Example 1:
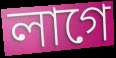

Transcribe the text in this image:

লাগে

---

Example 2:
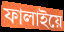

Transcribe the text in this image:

ফালাইয়ে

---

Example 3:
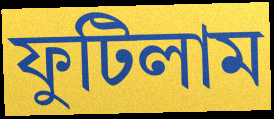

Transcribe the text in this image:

ফুটিলাম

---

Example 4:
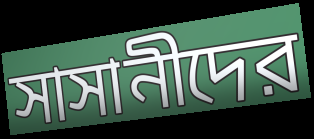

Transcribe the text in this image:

সাসানীদের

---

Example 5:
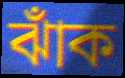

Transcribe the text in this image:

ঝাঁক